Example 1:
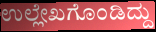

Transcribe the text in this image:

ಉಲ್ಲೇಖಗೊಂಡಿದ್ದು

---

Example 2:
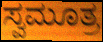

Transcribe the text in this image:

ಸ್ವಮೂತ್ರ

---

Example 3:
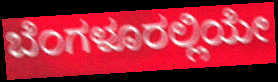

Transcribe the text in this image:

ಬೆಂಗಳೂರಲ್ಲಿಯೇ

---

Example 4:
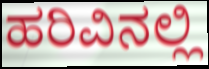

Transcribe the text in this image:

ಹರಿವಿನಲ್ಲಿ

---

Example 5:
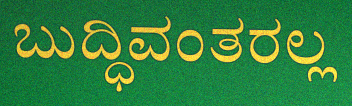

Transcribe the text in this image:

ಬುದ್ಧಿವಂತರಲ್ಲ